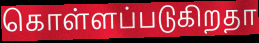
கொள்ளப்படுகிறதா